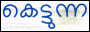
കെട്ടുന്ന